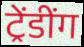
ट्रेंडींग